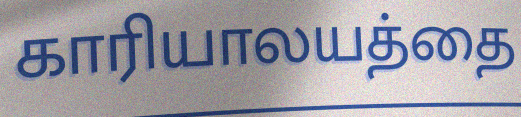
காரியாலயத்தை